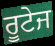
ਰੂਟੇਜ